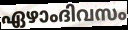
ഏഴാംദിവസം